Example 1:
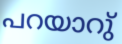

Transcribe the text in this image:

പറയാറു്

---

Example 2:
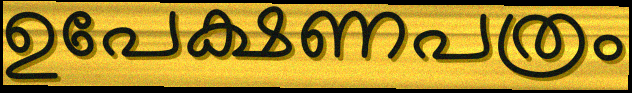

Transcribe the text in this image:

ഉപേക്ഷണപത്രം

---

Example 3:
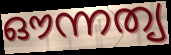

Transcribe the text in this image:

ഔന്നത്യ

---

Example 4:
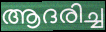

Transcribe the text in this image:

ആദരിച്ച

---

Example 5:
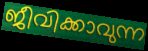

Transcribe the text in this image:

ജീവിക്കാവുന്ന